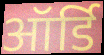
ऑर्डि